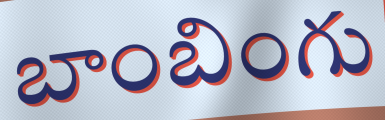
బాంబింగు